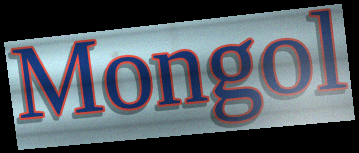
Mongol